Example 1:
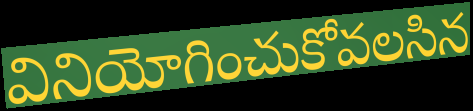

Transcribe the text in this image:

వినియోగించుకోవలసిన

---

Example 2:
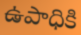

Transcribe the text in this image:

ఉపాధికి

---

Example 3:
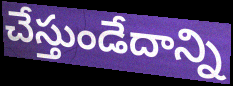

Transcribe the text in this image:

చేస్తుండేదాన్ని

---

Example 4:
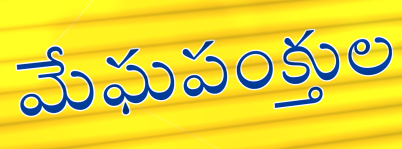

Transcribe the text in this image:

మేఘపంక్తుల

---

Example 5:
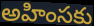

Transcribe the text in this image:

అహింసకు